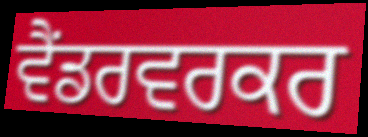
ਵੈਂਡਰਵਰਕਰ